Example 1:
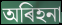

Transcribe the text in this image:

অৰিহনা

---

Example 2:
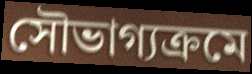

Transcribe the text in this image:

সৌভাগ্যক্ৰমে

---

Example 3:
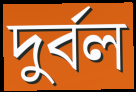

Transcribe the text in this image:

দুৰ্বল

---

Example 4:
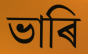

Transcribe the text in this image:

ভাৰি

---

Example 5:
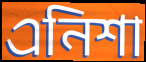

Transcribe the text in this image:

এনিশা